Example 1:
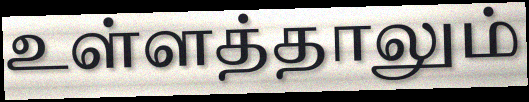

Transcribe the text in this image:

உள்ளத்தாலும்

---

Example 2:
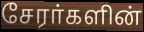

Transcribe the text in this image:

சேரர்களின்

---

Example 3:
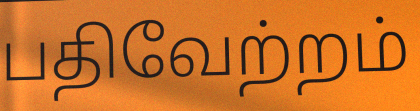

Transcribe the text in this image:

பதிவேற்றம்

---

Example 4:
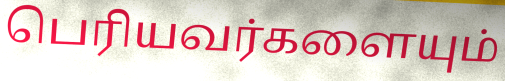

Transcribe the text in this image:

பெரியவர்களையும்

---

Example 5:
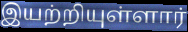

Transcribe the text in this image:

இயற்றியுள்ளார்